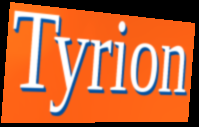
Tyrion